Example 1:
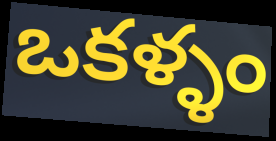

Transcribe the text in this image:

ఒకళ్ళం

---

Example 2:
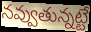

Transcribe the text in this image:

నవ్వుతున్నట్టే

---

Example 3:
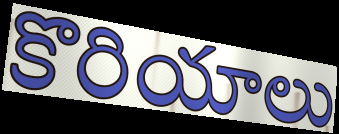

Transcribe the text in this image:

కొరియాలు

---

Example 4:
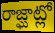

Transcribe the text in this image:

రాజ్ఘాట్లో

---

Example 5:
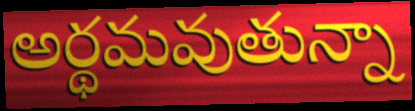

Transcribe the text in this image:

అర్థమవుతున్నా